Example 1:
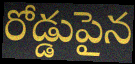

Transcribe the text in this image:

రోడ్డుపైన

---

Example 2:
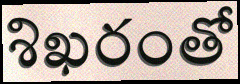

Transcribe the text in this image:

శిఖరంతో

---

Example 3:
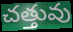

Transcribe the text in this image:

చత్తువు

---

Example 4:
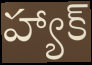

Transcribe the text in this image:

హ్యాక్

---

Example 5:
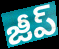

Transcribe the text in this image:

జీప్